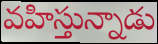
వహిస్తున్నాడు